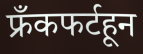
फ्रँकफर्टहून